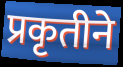
प्रकृतीने